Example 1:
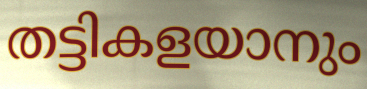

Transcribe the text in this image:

തട്ടികളയാനും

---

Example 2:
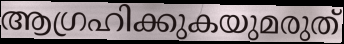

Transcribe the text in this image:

ആഗ്രഹിക്കുകയുമരുത്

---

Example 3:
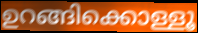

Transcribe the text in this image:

ഉറങ്ങിക്കൊള്ളൂ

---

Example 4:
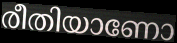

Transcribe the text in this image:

രീതിയാണോ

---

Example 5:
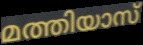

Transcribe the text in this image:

മത്തിയാസ്